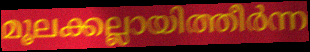
മൂലക്കല്ലായിത്തീർന്ന